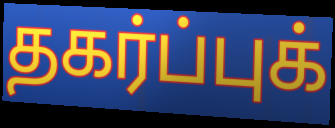
தகர்ப்புக்